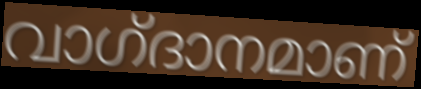
വാഗ്‌ദാനമാണ്